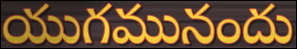
యుగమునందు